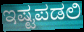
ಇಷ್ಟಪಡಲಿ